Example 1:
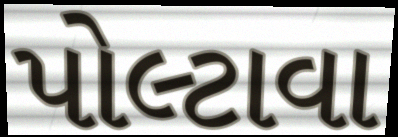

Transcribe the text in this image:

પોલ્ટાવા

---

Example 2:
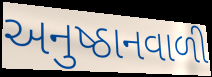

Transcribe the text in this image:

અનુષ્ઠાનવાળી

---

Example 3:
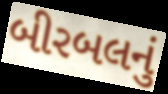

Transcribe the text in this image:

બીરબલનું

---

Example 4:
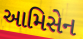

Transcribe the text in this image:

આમિસેન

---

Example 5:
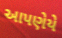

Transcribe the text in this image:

આપણેયે